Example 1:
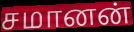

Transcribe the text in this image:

சமானன்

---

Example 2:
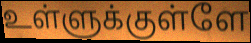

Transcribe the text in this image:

உள்ளுக்குள்ளே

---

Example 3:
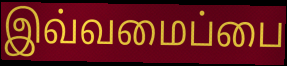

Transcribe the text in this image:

இவ்வமைப்பை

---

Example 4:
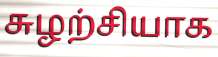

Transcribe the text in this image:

சுழற்சியாக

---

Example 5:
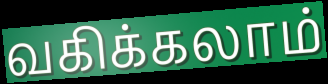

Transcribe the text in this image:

வகிக்கலாம்